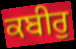
ਕਬੀਰੁ